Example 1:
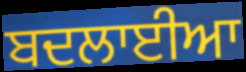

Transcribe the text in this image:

ਬਦਲਾਈਆ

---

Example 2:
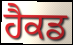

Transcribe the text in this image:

ਹੈਕਡ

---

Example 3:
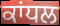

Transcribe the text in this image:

ਕਾਂਧਲ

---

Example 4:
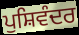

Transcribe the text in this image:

ਪੁਸ਼ਿਵੰਦਰ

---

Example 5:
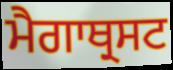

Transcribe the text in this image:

ਮੈਗਾਥ੍ਰਸਟ